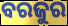
ବରଜୁର